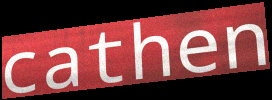
cathen